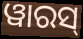
ୱାରସ୍